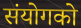
संयोगको